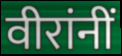
वीरांनीं